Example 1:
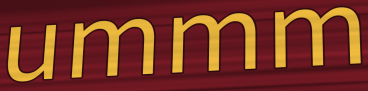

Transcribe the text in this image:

ummm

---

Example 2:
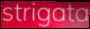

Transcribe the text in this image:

strigata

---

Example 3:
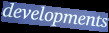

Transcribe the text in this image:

developments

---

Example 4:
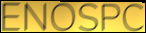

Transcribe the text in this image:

ENOSPC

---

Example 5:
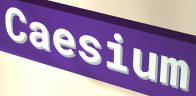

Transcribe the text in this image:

Caesium